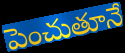
పెంచుతూనే